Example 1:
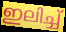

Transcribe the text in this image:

ഇലിച്ച്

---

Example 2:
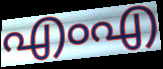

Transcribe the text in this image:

എംഎ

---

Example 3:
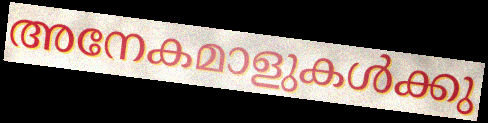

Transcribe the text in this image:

അനേകമാളുകൾക്കു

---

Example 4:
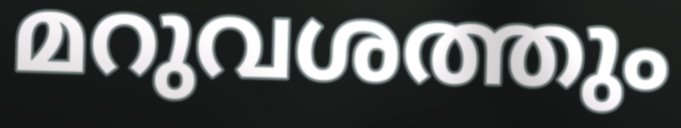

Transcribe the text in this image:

മറുവശത്തും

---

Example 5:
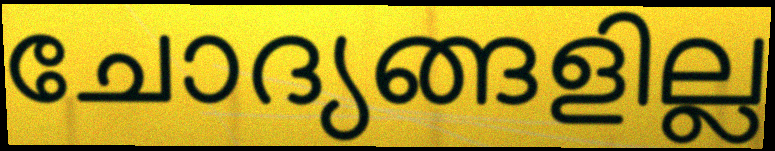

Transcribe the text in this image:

ചോദ്യങ്ങളില്ല